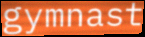
gymnast